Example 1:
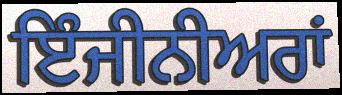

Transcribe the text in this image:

ਇੰਜੀਨੀਅਰਾਂ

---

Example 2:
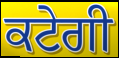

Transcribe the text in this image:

ਕਟੇਗੀ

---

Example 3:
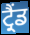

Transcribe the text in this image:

ਟ੍ਰੈਂਡ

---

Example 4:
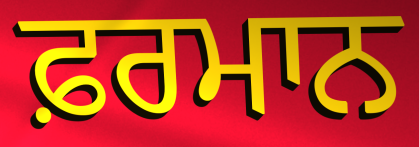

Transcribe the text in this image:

ਫ਼ਰਮਾਨ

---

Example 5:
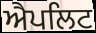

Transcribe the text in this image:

ਐਪਲਿਟ